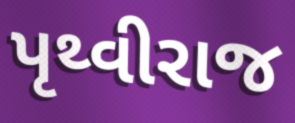
પૃથ્વીરાજ